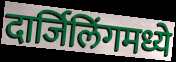
दार्जिलिंगमध्ये